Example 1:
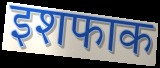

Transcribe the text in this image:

इशफाक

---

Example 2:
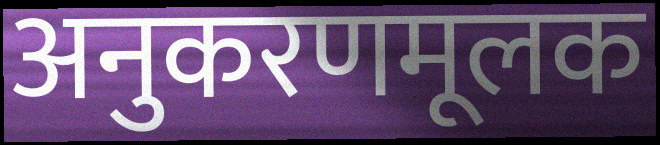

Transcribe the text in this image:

अनुकरणमूलक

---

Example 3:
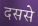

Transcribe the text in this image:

दससे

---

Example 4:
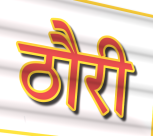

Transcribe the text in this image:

ठौरी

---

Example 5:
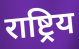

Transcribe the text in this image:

राष्ट्रिय